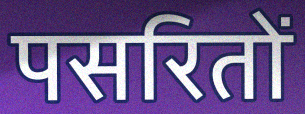
पसरितों